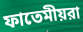
ফাতেমীয়রা